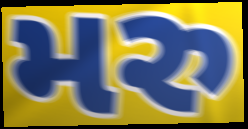
મરુ